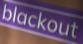
blackout